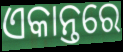
ଏକାନ୍ତରେ